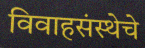
विवाहसंस्थेचे